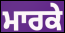
ਮਾਰਕੇ